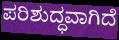
ಪರಿಶುದ್ಧವಾಗಿದೆ